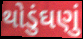
થોડુંઘણું